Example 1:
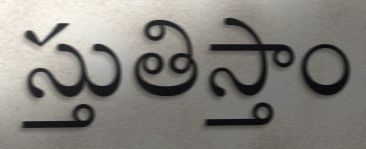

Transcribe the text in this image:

స్తుతిస్తాం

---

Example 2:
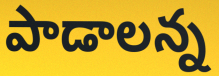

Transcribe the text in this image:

పాడాలన్న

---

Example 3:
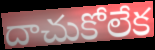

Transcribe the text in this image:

దాచుకోలేక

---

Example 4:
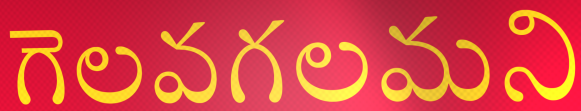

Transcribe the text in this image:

గెలవగలమని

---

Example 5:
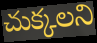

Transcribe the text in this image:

చుక్కలని